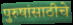
पुरुषांसाठीचे